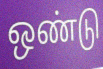
ஒண்டு